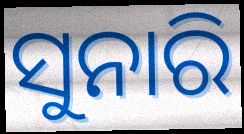
ସୁନାରି